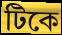
টিকে